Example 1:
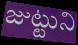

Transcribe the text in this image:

జుట్టుని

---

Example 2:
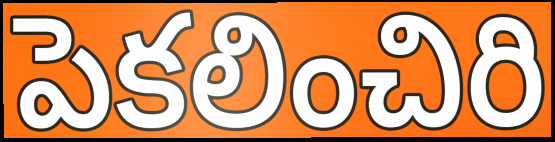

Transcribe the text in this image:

పెకలించిరి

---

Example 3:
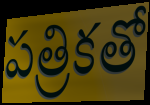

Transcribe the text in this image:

పత్రికతో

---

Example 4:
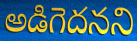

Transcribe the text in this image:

అడిగెదనని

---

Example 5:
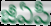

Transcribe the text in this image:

జీఏపీ